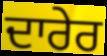
ਦਾਰੇਰ